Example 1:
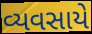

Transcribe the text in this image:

વ્યવસાયે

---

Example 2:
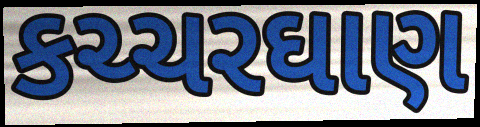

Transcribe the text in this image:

કચ્ચરઘાણ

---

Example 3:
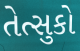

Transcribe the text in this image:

તેત્સુકો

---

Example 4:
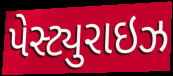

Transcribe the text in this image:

પેસ્ટ્યુરાઇઝ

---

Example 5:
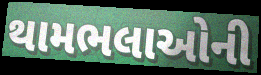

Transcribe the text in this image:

થામભલાઓની